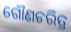
ଗୌଣଚରିତ୍ର